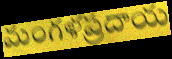
మంగళప్రదాయ